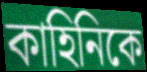
কাহিনিকে